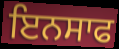
ਇਨਸਾਫ